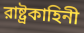
রাষ্ট্রকাহিনী